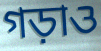
গড়াও